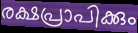
രക്ഷപ്രാപിക്കും